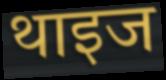
थाइज